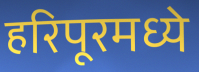
हरिपूरमध्ये